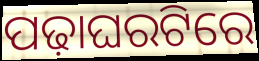
ପଢ଼ାଘରଟିରେ